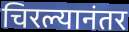
चिरल्यानंतर